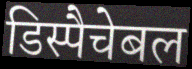
डिस्पैचेबल